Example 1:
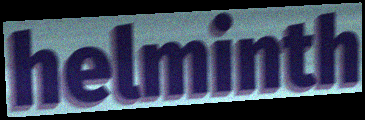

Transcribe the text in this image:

helminth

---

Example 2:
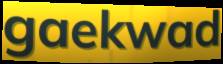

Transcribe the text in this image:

gaekwad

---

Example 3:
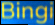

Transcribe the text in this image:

Bingi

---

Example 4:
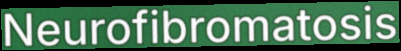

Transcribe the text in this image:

Neurofibromatosis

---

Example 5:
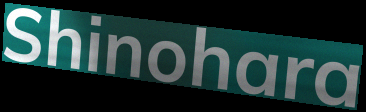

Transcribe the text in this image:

Shinohara